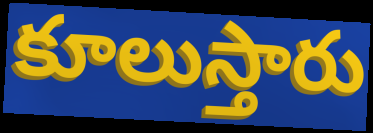
కూలుస్తారు